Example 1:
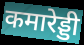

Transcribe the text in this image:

कमारेड्डी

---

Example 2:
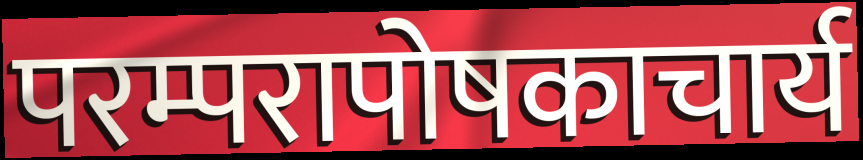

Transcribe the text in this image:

परम्परापोषकाचार्य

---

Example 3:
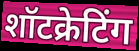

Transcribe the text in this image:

शॉटक्रेटिंग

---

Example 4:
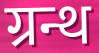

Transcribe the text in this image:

ग्रन्थ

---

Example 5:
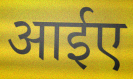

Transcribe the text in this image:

आईए